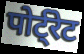
पोर्ट्रेट